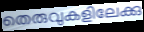
തെരുവുകളിലേക്കു